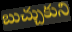
బుచ్చుకుని